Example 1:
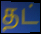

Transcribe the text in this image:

தட்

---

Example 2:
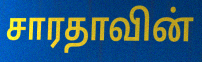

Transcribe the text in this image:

சாரதாவின்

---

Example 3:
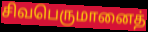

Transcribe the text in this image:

சிவபெருமானைத்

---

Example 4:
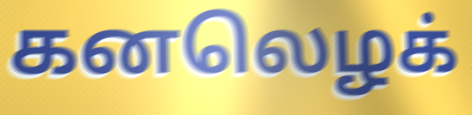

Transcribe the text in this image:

கனலெழக்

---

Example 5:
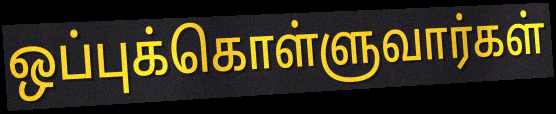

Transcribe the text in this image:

ஒப்புக்கொள்ளுவார்கள்